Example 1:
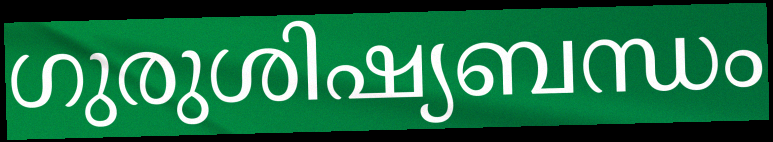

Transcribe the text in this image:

ഗുരുശിഷ്യബന്ധം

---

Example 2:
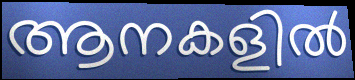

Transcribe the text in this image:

ആനകളിൽ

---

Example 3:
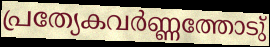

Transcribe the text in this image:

പ്രത്യേകവർണ്ണത്തോടു്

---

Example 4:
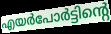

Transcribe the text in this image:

എയർപോർട്ടിന്റെ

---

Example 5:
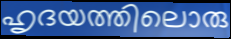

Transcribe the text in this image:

ഹൃദയത്തിലൊരു